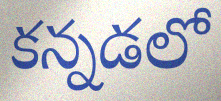
కన్నడలో